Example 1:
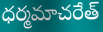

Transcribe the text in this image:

ధర్మమాచరేత్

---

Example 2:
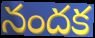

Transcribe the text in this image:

నందక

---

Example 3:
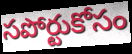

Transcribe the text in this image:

సపోర్టుకోసం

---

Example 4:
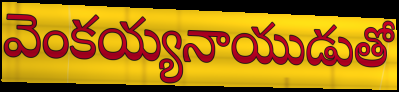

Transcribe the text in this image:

వెంకయ్యనాయుడుతో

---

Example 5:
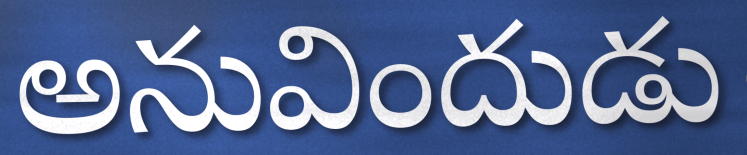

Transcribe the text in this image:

అనువిందుడు